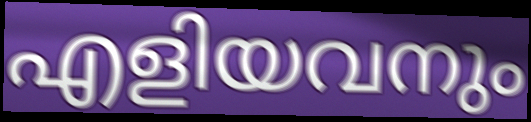
എളിയവനും